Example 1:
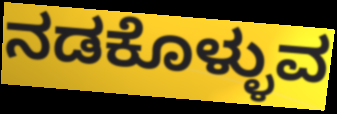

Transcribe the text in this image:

ನಡಕೊಳ್ಳುವ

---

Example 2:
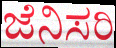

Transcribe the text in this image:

ಜೆನಿಸರಿ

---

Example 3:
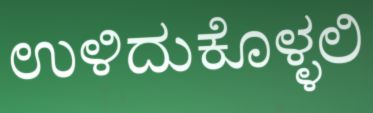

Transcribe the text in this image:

ಉಳಿದುಕೊಳ್ಳಲಿ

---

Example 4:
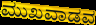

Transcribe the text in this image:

ಮುಖವಾಡವ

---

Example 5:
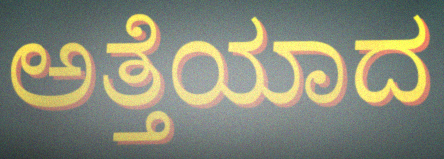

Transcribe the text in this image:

ಅತ್ತೆಯಾದ